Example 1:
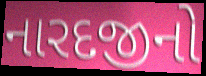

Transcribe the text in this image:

નારદજીનો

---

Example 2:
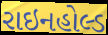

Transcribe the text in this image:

રાઇનહોલ્ડ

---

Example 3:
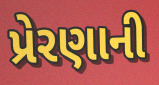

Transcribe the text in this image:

પ્રેરણાની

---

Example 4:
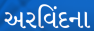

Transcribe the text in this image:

અરવિંદના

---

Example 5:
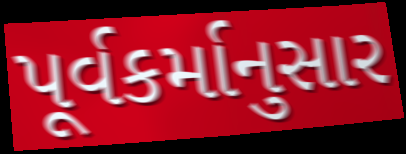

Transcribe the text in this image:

પૂર્વકર્માનુસાર